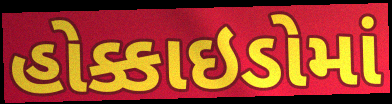
હોક્કાઇડોમાં